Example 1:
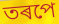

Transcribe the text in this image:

তৰপে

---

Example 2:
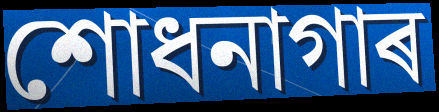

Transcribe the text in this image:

শোধনাগাৰ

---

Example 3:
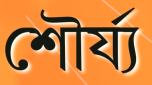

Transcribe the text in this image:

শৌৰ্য্য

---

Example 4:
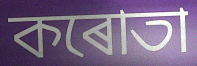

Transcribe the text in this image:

কৰোতা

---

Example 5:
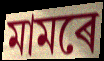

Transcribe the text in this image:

মামৰে